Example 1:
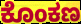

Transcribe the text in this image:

ಕೊಂಕಣ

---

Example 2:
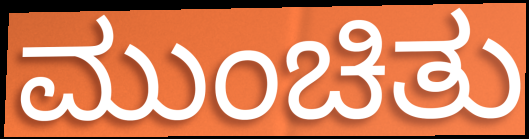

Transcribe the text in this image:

ಮುಂಚಿತು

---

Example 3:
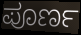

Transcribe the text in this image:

ಪೂರ್ಣ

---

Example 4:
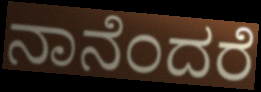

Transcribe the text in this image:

ನಾನೆಂದರೆ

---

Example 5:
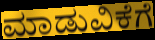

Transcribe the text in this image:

ಮಾಡುವಿಕೆಗೆ